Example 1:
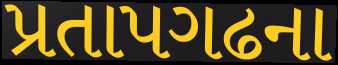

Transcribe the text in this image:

પ્રતાપગઢના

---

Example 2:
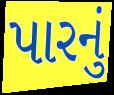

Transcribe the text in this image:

પારનું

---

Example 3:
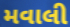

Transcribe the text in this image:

મવાલી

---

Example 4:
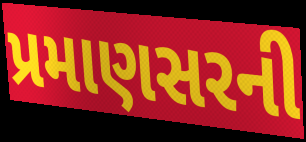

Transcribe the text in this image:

પ્રમાણસરની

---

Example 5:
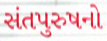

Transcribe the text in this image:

સંતપુરુષનો